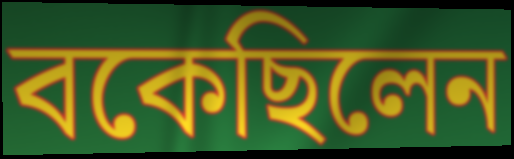
বকেছিলেন